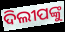
ଦିଲୀପଙ୍କୁ